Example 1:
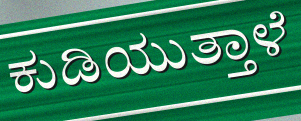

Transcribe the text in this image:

ಕುಡಿಯುತ್ತಾಳೆ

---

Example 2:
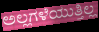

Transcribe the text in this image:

ಅಲ್ಲಗಳೆಯುತ್ತಿಲ್ಲ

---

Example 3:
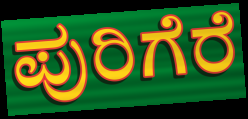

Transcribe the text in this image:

ಪುರಿಗೆರೆ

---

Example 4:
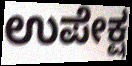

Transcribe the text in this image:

ಉಪೇಕ್ಷ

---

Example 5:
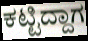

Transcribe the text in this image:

ಕಟ್ಟಿದ್ದಾಗ